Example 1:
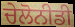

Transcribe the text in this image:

ਚੇਲੋਨੀਡੀ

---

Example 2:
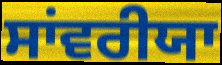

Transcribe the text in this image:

ਸਾਂਵਰੀਯਾ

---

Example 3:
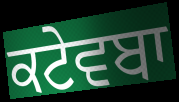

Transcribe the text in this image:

ਕਟੇਵਬਾ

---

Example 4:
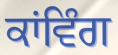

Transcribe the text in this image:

ਕਾਂਵਿੰਗ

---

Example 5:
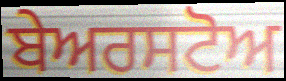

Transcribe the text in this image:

ਬੇਅਰਸਟੋਅ